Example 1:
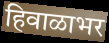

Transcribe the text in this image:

हिवाळाभर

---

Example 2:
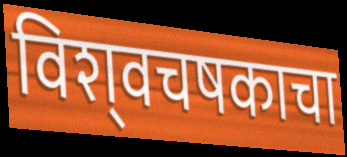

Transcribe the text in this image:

विश्वचषकाचा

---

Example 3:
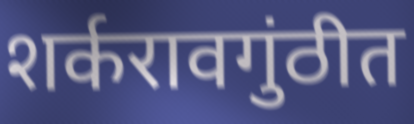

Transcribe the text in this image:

शर्करावगुंठीत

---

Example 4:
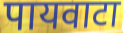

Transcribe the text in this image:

पायवाटा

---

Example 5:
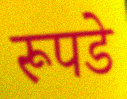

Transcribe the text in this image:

रूपडे